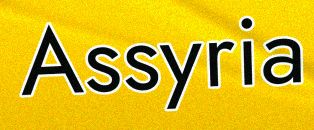
Assyria